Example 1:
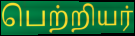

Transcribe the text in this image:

பெற்றியர்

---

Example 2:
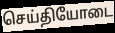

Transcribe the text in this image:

செய்தியோடை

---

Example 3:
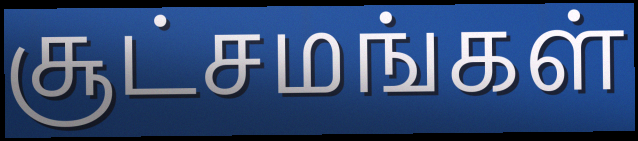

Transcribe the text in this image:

சூட்சமங்கள்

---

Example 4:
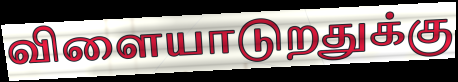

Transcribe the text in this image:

விளையாடுறதுக்கு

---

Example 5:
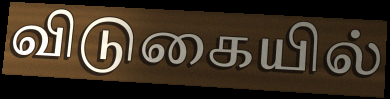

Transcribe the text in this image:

விடுகையில்